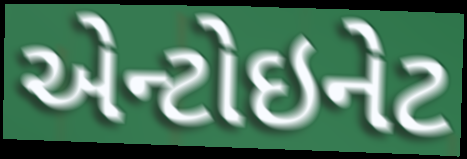
એન્ટોઇનેટ